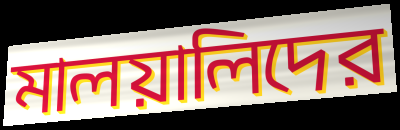
মালয়ালিদের